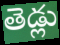
తెడ్లు